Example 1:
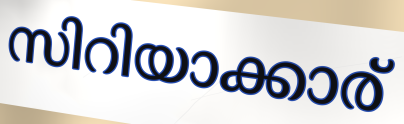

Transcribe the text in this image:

സിറിയാക്കാര്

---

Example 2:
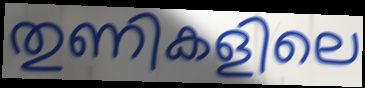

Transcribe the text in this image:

തുണികളിലെ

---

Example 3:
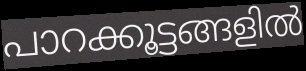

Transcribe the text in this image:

പാറക്കൂട്ടങ്ങളിൽ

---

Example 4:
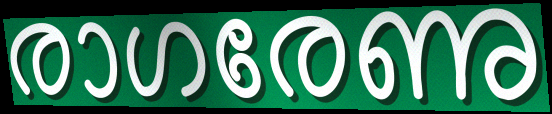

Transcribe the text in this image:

രാഗരേണു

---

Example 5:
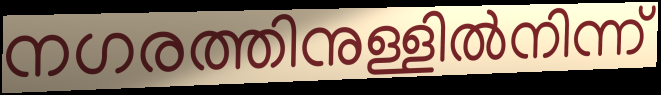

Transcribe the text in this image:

നഗരത്തിനുള്ളിൽനിന്ന്